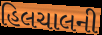
હિલચાલની